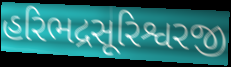
હરિભદ્રસૂરિશ્વરજી